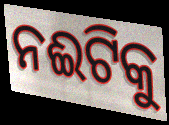
ନଈଟିକୁ